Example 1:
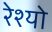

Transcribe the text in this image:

रेश्यो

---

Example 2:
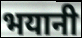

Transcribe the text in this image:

भयानी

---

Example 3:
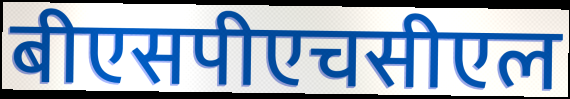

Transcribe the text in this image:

बीएसपीएचसीएल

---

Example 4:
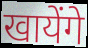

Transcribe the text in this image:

खायेंगे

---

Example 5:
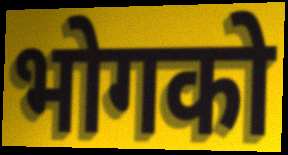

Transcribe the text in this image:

भोगको